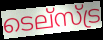
ടെല്സ്ട്ര